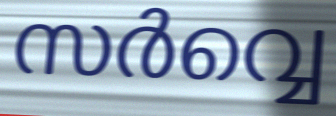
സർവ്വെ